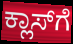
ಕ್ಲಾಸ್‍ಗೆ